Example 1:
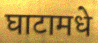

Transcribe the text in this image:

घाटामधे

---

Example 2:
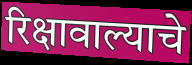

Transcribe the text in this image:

रिक्षावाल्याचे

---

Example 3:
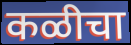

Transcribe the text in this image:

कळीचा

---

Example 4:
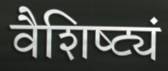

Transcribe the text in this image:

वैशिष्ट्यं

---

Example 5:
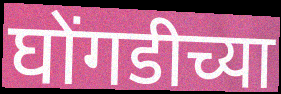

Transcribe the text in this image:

घोंगडीच्या